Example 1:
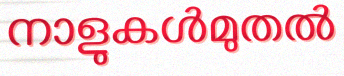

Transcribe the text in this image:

നാളുകൾമുതൽ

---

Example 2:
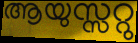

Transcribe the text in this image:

ആയുസ്സറ്റു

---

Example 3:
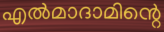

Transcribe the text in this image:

എൽമാദാമിന്റെ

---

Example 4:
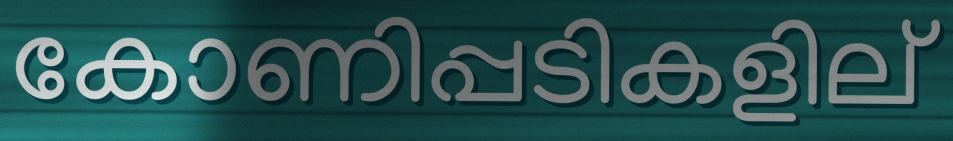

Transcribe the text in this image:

കോണിപ്പടികളില്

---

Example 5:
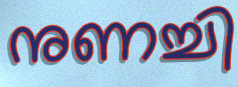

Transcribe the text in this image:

നുണച്ചി